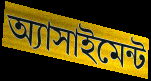
অ্যাসাইমেন্ট